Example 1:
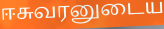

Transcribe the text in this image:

ஈசுவரனுடைய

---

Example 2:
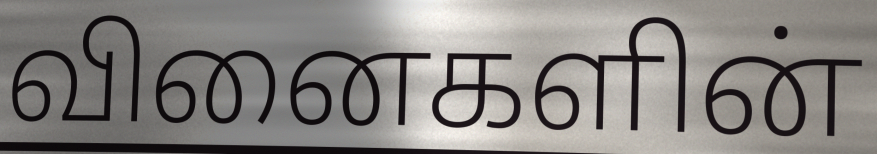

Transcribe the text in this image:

வினைகளின்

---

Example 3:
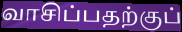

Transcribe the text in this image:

வாசிப்பதற்குப்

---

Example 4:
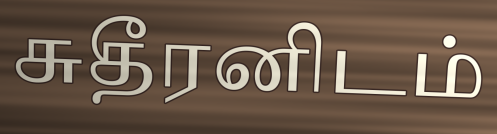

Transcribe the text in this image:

சுதீரனிடம்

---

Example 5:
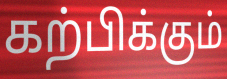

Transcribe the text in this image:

கற்பிக்கும்